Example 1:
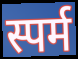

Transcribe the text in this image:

स्पर्म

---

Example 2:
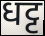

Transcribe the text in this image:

धट्ट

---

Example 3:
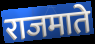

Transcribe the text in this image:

राजमाते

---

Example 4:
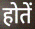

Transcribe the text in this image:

होतें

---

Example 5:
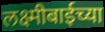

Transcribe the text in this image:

लक्ष्मीबाईच्या